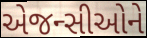
એજન્સીઓને